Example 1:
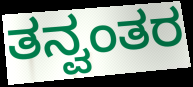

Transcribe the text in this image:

ತನ್ವಂತರ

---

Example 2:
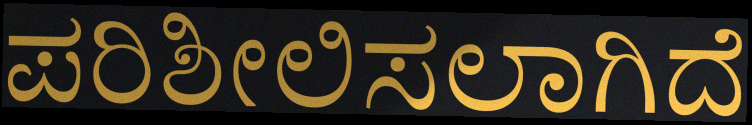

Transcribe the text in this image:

ಪರಿಶೀಲಿಸಲಾಗಿದೆ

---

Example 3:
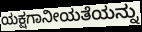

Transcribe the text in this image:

ಯಕ್ಷಗಾನೀಯತೆಯನ್ನು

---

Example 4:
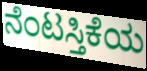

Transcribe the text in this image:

ನೆಂಟಸ್ತಿಕೆಯ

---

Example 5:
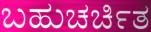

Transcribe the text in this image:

ಬಹುಚರ್ಚಿತ